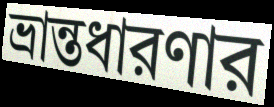
ভ্রান্তধারণার